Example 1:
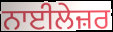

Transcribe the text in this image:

ਨਾਈਲੇਜ਼ਰ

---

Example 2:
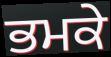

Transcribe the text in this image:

ਭਮਕੇ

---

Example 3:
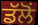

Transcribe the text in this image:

ਡੱਲੋਂ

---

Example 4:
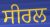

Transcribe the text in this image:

ਸੀਰਲ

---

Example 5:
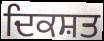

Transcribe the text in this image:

ਦਿਕਸ਼ਤ